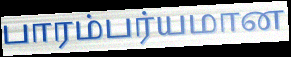
பாரம்பர்யமான